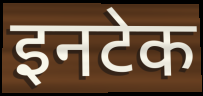
इनटेक